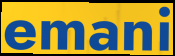
emani